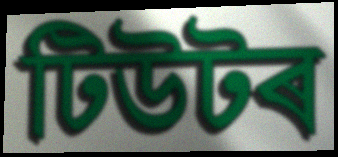
টিউটৰ